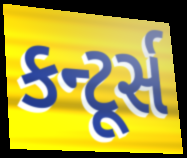
કન્ટૂર્સ